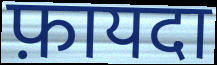
फ़ायदा